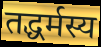
तद्धर्मस्य